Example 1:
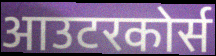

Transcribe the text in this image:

आउटरकोर्स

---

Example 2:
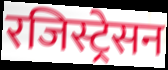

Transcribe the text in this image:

रजिस्ट्रेसन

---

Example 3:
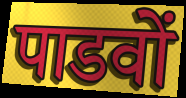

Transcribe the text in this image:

पाडवों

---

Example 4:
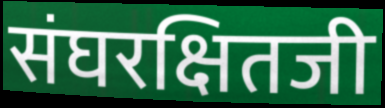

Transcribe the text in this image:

संघरक्षितजी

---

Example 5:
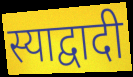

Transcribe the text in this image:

स्याद्वादी